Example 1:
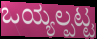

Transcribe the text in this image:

ಒಯ್ಯಲ್ಪಟ್ಟ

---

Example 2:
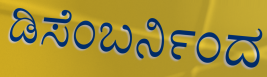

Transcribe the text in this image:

ಡಿಸೆಂಬರ್ನಿಂದ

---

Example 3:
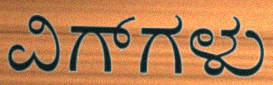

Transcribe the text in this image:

ವಿಗ್‌ಗಳು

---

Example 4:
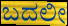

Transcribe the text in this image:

ಬದಲೀ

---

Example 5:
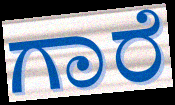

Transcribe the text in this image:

ಗಾರೆ